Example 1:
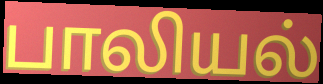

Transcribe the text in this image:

பாலியல்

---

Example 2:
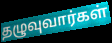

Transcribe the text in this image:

தழுவுவார்கள்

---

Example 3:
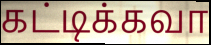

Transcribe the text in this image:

கட்டிக்கவா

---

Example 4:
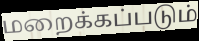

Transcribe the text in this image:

மறைக்கப்படும்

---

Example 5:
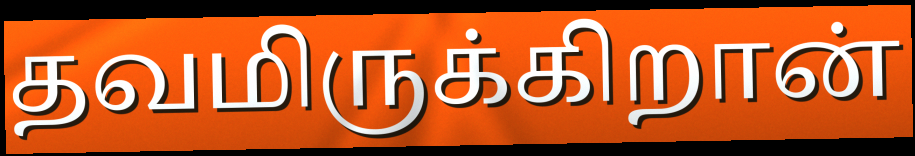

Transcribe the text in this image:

தவமிருக்கிறான்